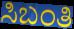
ಸಿಬಂತಿ